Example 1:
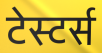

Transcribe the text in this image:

टेस्टर्स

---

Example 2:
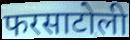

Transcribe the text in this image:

फरसाटोली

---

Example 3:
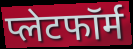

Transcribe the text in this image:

प्लेटफॉर्म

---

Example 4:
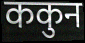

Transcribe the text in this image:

ककुन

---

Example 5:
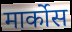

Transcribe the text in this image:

मार्कोस